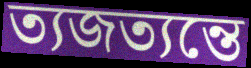
ত্যজত্যন্তে